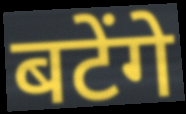
बटेंगे